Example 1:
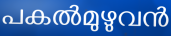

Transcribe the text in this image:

പകൽമുഴുവൻ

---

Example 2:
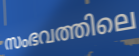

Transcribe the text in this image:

സംഭവത്തിലെ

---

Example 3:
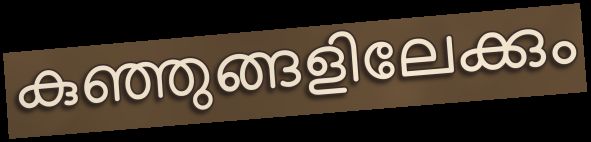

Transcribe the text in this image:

കുഞ്ഞുങ്ങളിലേക്കും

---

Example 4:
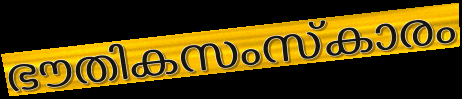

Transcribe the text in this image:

ഭൗതികസംസ്‌കാരം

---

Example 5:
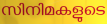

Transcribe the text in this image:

സിനിമകളുടെ